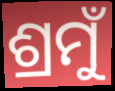
ଶ୍ରମୁଁ